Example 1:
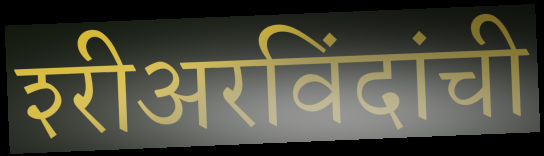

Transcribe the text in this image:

श्रीअरविंदांची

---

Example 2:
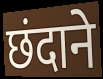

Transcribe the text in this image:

छंदाने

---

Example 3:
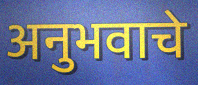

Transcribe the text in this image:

अनुभवाचे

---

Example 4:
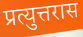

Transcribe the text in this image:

प्रत्युत्तरास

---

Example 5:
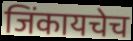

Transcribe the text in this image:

जिंकायचेच